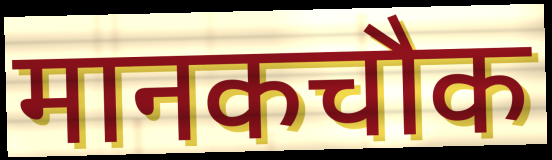
मानकचौक